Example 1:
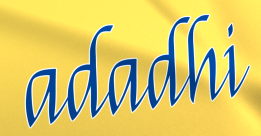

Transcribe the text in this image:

adadhi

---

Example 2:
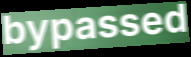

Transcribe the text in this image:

bypassed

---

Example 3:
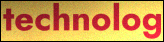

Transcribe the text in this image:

technolog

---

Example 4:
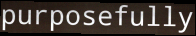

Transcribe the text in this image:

purposefully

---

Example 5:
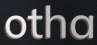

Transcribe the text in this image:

otha